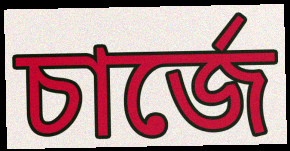
চার্জে